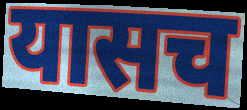
यासच